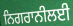
ਨਿਗਰਾਨੀਲਈ